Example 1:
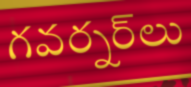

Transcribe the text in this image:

గవర్నర్‌లు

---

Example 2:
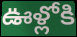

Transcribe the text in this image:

ఊళ్లోకి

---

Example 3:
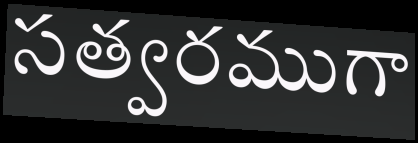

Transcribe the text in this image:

సత్వరముగా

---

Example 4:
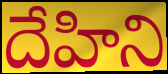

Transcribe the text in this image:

దేహిని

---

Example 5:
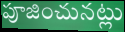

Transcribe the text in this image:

పూజించునట్లు